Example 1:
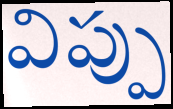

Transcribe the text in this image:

విప్పు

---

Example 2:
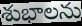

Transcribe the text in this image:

శుభాలను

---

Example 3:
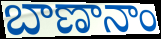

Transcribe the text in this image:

బాణానాం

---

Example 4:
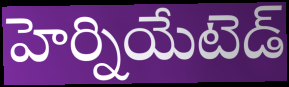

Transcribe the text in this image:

హెర్నియేటెడ్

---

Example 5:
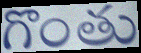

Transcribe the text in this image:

గొంతు